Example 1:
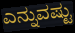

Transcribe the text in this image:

ಎನ್ನುವಷ್ಟು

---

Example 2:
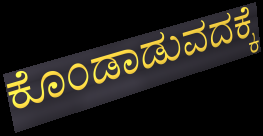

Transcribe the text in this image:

ಕೊಂಡಾಡುವದಕ್ಕೆ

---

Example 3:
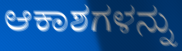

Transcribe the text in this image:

ಆಕಾಶಗಳನ್ನು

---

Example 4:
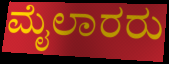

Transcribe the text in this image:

ಮೈಲಾರರು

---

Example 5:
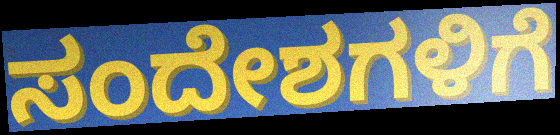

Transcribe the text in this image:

ಸಂದೇಶಗಳಿಗೆ